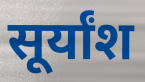
सूर्यांश